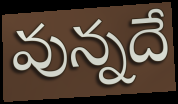
వున్నదే